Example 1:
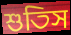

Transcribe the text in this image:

শুতিস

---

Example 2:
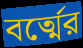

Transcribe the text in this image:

বর্ত্মের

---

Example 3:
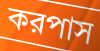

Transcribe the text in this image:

করপাস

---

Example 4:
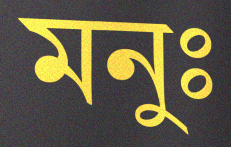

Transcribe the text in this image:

মনুঃ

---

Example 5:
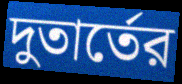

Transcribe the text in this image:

দুতার্তের